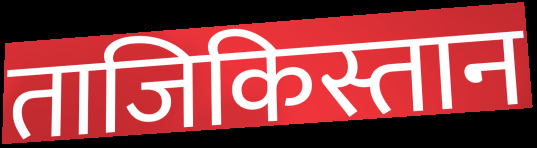
ताजिकिस्तान